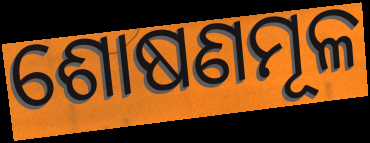
ଶୋଷଣମୂଳ